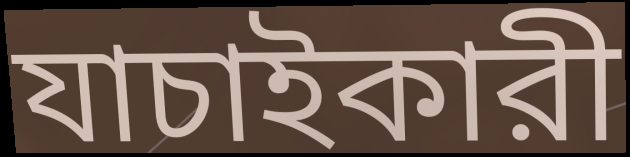
যাচাইকারী